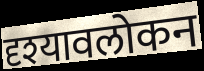
दृश्‍यावलोकन